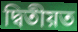
দ্বিতীয়ত